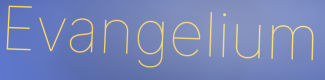
Evangelium